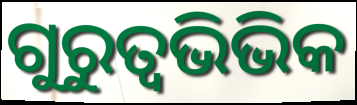
ଗୁରୁତ୍ଵଭିଭିକ